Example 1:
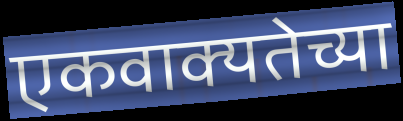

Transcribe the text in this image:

एकवाक्यतेच्या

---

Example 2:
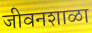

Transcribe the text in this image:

जीवनशाळा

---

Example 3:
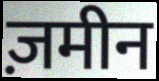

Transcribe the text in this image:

ज़मीन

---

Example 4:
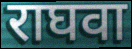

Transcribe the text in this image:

राघवा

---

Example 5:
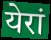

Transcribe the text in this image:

येरां